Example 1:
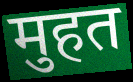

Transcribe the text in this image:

मुहत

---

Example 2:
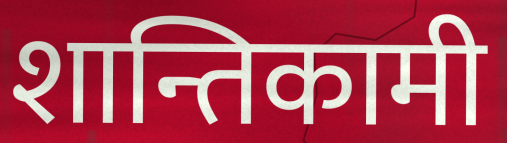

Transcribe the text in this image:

शान्तिकामी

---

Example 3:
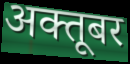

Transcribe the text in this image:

अक्तूबर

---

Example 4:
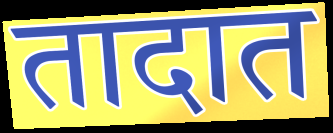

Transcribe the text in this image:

तादात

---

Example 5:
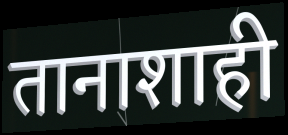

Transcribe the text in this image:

तानाशाही